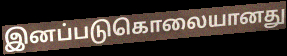
இனப்படுகொலையானது